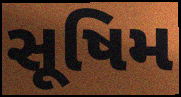
સૂષિમ